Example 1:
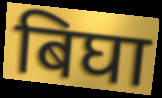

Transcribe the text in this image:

बिघा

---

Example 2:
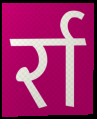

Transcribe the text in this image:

र्रा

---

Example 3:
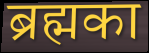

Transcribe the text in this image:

ब्रह्मका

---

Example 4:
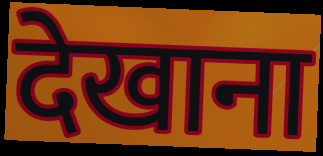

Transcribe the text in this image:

देखाना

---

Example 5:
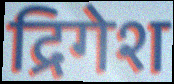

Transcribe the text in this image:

द्रिगेश